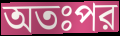
অতঃপর